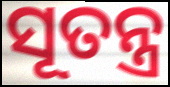
ସୂତନ୍ତ୍ର